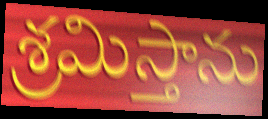
శ్రమిస్తాను